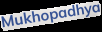
Mukhopadhya